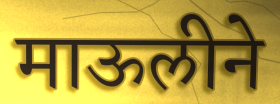
माऊलीने